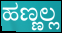
ಹಣ್ಣಲ್ಲ